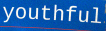
youthful